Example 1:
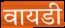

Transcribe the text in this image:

वायडी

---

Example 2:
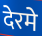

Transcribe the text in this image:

देरमे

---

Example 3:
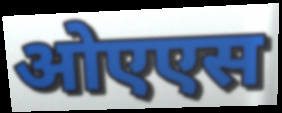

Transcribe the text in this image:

ओएएस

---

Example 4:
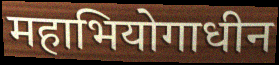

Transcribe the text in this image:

महाभियोगाधीन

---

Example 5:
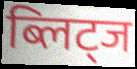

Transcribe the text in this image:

ब्लिट्ज